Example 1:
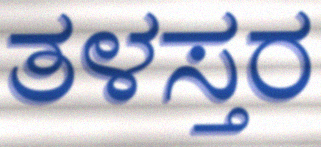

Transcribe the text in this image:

ತಳಸ್ತರ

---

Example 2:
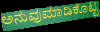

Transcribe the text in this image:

ಅನುವುಮಾಡಿಕೊಟ್ಟ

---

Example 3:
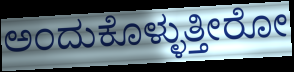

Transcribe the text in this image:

ಅಂದುಕೊಳ್ಳುತ್ತೀರೋ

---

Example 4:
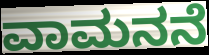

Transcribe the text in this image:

ವಾಮನನೆ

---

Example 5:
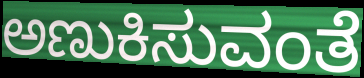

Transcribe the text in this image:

ಅಣುಕಿಸುವಂತೆ